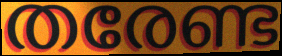
തരേണ്ട